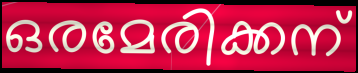
ഒരമേരിക്കന്